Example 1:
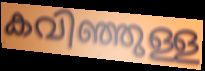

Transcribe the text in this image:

കവിഞ്ഞുള്ള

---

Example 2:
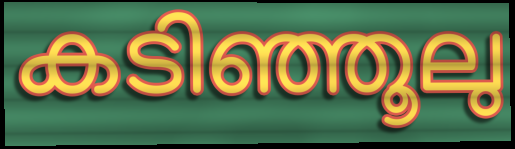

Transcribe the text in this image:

കടിഞ്ഞൂലു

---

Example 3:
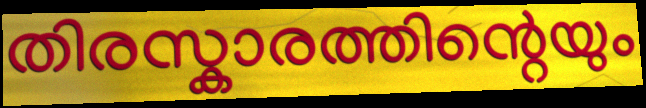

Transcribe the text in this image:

തിരസ്കാരത്തിന്റെയും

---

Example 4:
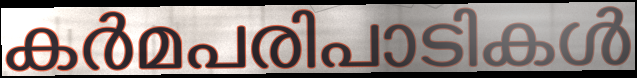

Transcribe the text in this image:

കർമപരിപാടികൾ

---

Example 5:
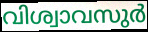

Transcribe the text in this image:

വിശ്വാവസുർ